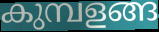
കുമ്പളങ്ങ